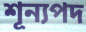
শূন্যপদ